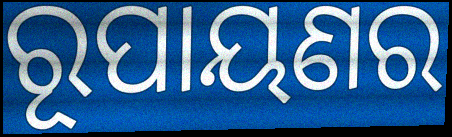
ରୂପାୟଣର